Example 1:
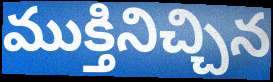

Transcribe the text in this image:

ముక్తినిచ్చిన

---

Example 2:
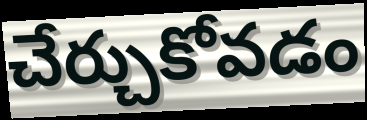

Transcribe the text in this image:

చేర్చుకోవడం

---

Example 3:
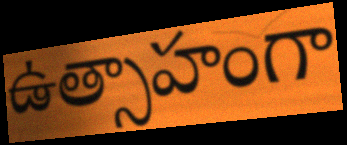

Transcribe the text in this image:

ఉత్సాహంగా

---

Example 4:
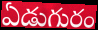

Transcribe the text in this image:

ఏడుగురం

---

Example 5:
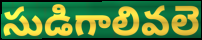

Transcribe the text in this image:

సుడిగాలివలె